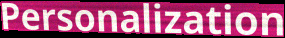
Personalization